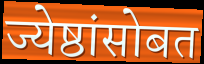
ज्येष्ठांसोबत